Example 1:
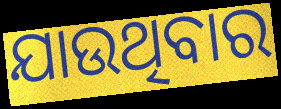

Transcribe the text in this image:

ଯାଉଥିବାର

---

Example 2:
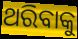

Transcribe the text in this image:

ଥରିବାକୁ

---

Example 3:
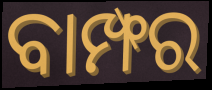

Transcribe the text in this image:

ବାମ୍ଫର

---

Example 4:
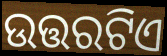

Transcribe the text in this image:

ଉତ୍ତରଟିଏ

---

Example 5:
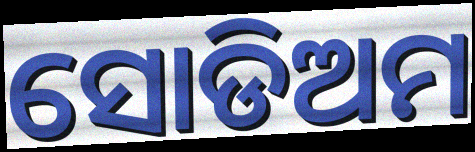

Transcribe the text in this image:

ସୋଡିଅମ